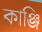
কাঞ্জি